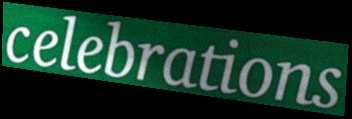
celebrations